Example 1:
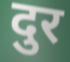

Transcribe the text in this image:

दुर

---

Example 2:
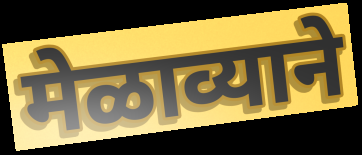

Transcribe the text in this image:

मेळाव्याने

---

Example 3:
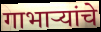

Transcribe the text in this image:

गाभाऱ्यांचे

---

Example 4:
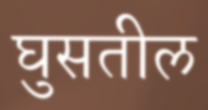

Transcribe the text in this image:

घुसतील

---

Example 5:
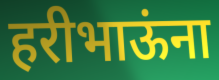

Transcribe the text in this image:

हरीभाऊंना